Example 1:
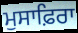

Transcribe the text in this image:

ਮੁਸਾਫ਼ਿਰਾ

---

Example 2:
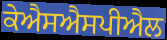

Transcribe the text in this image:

ਕੇਐਸਐਸਪੀਐਲ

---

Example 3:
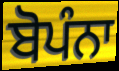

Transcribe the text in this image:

ਬੋਪੰਨਾ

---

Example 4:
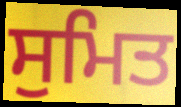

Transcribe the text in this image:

ਸੁਮਿਤ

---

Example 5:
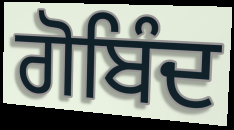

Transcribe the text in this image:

ਗੋਬਿੰਦ